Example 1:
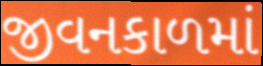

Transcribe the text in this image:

જીવનકાળમાં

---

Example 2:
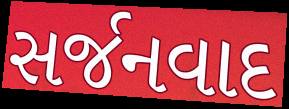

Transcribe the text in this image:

સર્જનવાદ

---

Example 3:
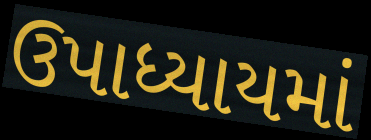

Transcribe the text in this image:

ઉપાધ્યાયમાં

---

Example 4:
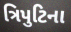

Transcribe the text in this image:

ત્રિપુટિના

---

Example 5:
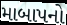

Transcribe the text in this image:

માબાપનો